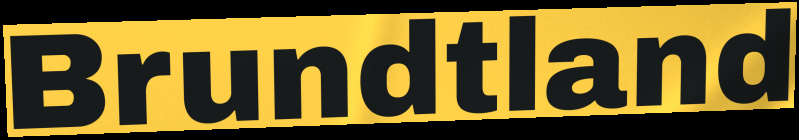
Brundtland